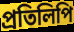
প্ৰতিলিপি